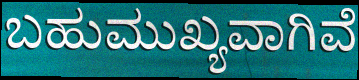
ಬಹುಮುಖ್ಯವಾಗಿವೆ